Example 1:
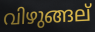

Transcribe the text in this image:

വിഴുങ്ങല്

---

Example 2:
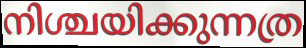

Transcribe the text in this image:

നിശ്ചയിക്കുന്നത്ര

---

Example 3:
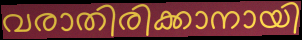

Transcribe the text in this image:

വരാതിരിക്കാനായി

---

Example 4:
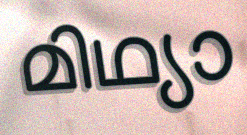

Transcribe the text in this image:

മിഥ്യാ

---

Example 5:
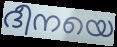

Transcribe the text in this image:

ദീനയെ